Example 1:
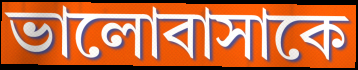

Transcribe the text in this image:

ভালোবাসাকে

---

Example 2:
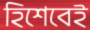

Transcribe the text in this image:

হিশেবেই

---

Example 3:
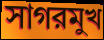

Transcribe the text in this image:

সাগরমুখ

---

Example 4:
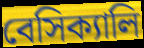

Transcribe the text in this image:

বেসিক্যালি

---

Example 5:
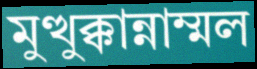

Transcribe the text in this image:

মুত্থুক্কান্নাম্মল